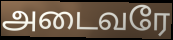
அடைவரே